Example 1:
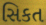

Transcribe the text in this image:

સિકત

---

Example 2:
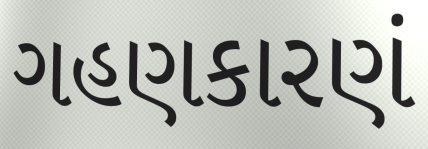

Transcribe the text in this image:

ગહણકારણં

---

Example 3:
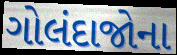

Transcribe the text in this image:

ગોલંદાજોના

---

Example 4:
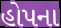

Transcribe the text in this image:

હોપના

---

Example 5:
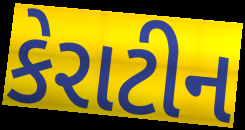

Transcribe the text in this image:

કેરાટીન